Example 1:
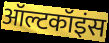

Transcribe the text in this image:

ऑल्टकॉइंस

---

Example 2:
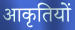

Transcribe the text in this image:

आकृतियों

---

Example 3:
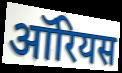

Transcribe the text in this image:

ऑरियस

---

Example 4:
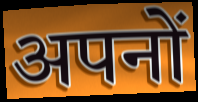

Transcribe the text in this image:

अपनों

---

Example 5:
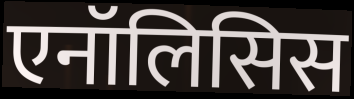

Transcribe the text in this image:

एनॉलिसिस